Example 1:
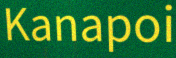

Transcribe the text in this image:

Kanapoi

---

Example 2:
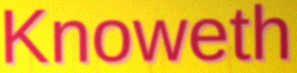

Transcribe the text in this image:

Knoweth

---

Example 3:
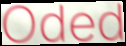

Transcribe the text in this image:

Oded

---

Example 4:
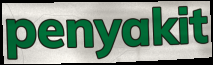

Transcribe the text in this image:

penyakit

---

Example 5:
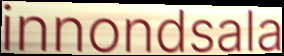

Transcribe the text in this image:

innondsala